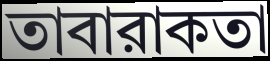
তাবারাকতা